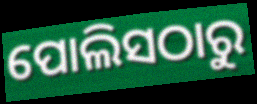
ପୋଲିସଠାରୁ